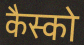
कैस्को